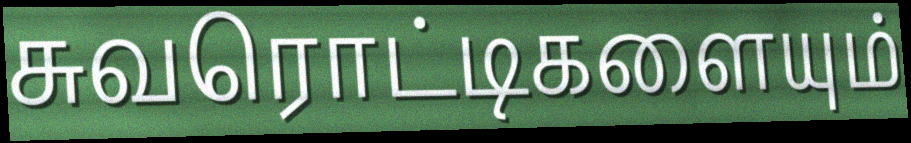
சுவரொட்டிகளையும்